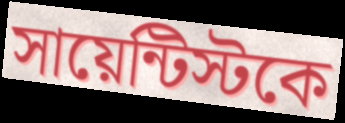
সায়েন্টিস্টকে